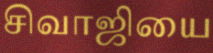
சிவாஜியை